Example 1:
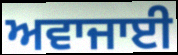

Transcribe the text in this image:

ਅਵਾਜਾਈ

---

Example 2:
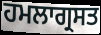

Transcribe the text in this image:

ਹਮਲਾਗ੍ਰਸਤ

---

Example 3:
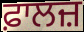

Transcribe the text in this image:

ਫ਼ਾਲਜ਼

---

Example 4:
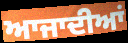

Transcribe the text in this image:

ਆਜਾਦੀਆਂ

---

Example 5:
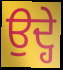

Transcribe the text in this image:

ਉਦ੍ਹੇ